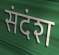
संदंश